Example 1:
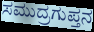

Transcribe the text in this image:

ಸಮುದ್ರಗುಪ್ತನ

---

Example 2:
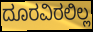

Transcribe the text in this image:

ದೂರವಿರಲಿಲ್ಲ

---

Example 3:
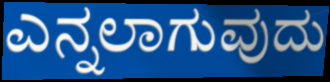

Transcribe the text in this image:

ಎನ್ನಲಾಗುವುದು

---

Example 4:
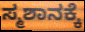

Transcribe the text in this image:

ಸ್ಮಶಾನಕ್ಕೆ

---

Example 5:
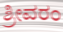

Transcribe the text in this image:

ಶ್ರೀವರಂ